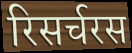
रिसर्चरस